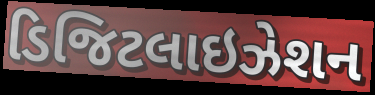
ડિજિટલાઇઝેશન